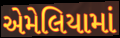
એમેલિયામાં